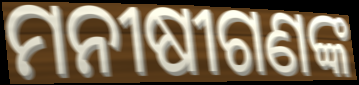
ମନୀଷୀଗଣଙ୍କ